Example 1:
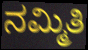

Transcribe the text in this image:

ನಮ್ಮಿತಿ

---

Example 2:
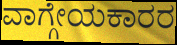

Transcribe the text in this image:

ವಾಗ್ಗೇಯಕಾರರ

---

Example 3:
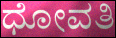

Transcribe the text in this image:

ಧೋವತಿ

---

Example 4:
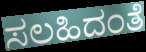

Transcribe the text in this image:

ಸಲಹಿದಂತೆ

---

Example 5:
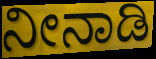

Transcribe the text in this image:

ನೀನಾಡಿ